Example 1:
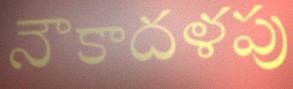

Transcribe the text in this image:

నౌకాదళపు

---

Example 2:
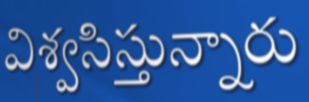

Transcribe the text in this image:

విశ్వసిస్తున్నారు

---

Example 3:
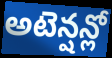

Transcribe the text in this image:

అటెన్షన్లో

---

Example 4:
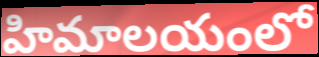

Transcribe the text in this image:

హిమాలయంలో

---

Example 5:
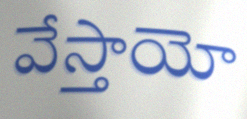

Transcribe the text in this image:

వేస్తాయో